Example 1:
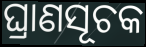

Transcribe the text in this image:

ଘ୍ରାଣସୂଚକ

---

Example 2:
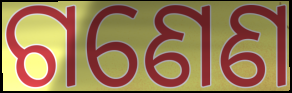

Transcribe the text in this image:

ଗଣେଣ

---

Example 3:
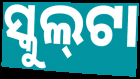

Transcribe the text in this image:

ସ୍କୁଲ୍‍ଟା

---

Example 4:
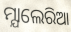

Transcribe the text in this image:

ମ୍ଯାଲେରିଆ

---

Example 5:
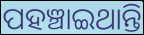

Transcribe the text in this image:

ପହଞ୍ଚାଇଥାନ୍ତି